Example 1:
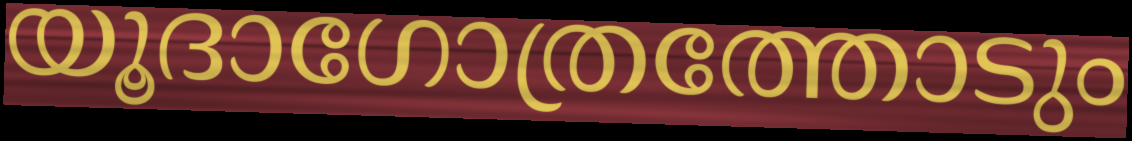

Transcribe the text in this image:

യൂദാഗോത്രത്തോടും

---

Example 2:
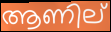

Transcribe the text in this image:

ആണില്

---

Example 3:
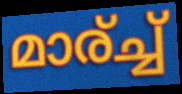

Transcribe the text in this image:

മാര്ച്ച്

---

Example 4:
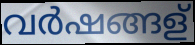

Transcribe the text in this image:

വർഷങ്ങള്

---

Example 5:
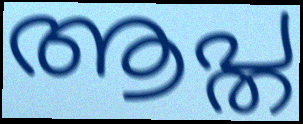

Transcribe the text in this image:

ആപ്ത